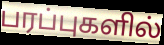
பரப்புகளில்